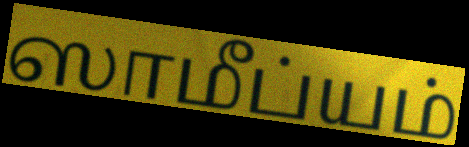
ஸாமீப்யம்